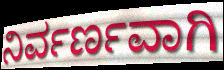
ನಿರ್ವರ್ಣವಾಗಿ